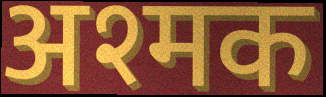
अश्मक